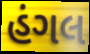
હંગલ